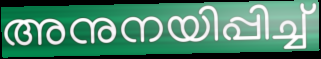
അനുനയിപ്പിച്ച്